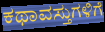
ಕಥಾವಸ್ತುಗಳಿಗೆ